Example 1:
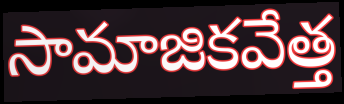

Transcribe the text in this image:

సామాజికవేత్త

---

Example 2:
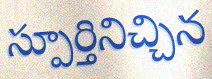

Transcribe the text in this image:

స్పూర్తినిచ్చిన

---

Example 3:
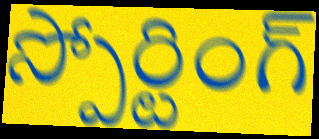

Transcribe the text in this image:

స్పోర్టింగ్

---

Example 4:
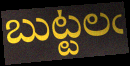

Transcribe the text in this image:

బుట్టలఁ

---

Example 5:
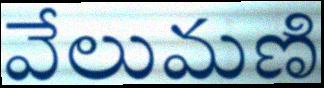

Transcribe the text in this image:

వేలుమణి